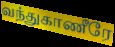
வந்துகாணீரே